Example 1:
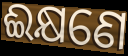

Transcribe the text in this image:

ଈକ୍ଷଣେ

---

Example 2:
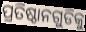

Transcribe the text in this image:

ପ୍ରତିଷ୍ଠାନଗୁଡିକୁ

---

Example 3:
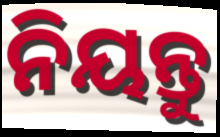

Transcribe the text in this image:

ନିୟନ୍ତୁ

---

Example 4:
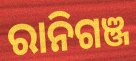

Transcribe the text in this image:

ରାନିଗଞ୍ଜ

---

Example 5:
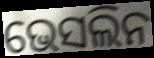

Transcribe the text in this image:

ଭେସଲିନ